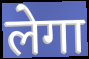
लेगा